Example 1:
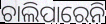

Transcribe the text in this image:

ଚାଲିପାରେନି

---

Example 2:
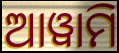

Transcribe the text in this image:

ଆୱାମି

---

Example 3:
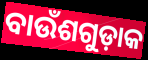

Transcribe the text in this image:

ବାଉଁଶଗୁଡ଼ାକ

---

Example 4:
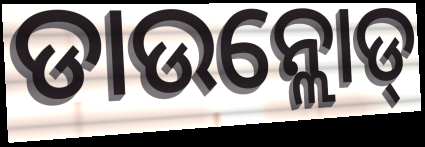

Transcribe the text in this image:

ଡାଉନ୍ଲୋଡ୍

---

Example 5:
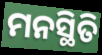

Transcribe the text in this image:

ମନସ୍ଥିତି